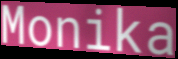
Monika